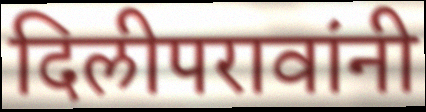
दिलीपरावांनी